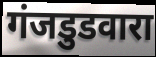
गंजडुडवारा